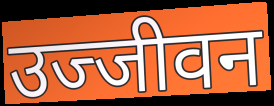
उज्जीवन